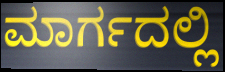
ಮಾರ್ಗದಲ್ಲಿ